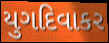
યુગદિવાકર